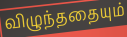
விழுந்ததையும்